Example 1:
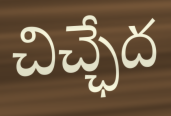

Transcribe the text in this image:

చిచ్ఛేద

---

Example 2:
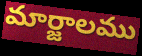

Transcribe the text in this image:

మార్జాలము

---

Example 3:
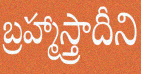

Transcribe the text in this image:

బ్రహ్మాస్త్రాదీని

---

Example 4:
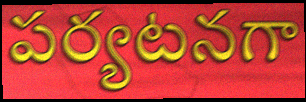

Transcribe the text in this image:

పర్యటనగా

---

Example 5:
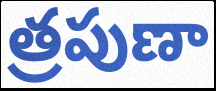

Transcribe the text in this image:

త్రపుణా